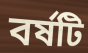
বর্ষটি